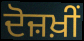
ਦੋਜ਼ਖ਼ੀਂ